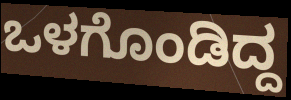
ಒಳಗೊಂಡಿದ್ದ